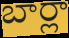
బార్లా